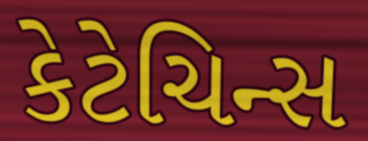
કેટેચિન્સ